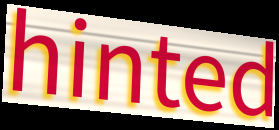
hinted